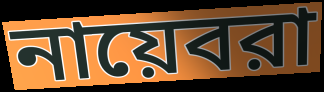
নায়েবরা